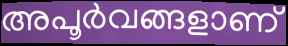
അപൂർവങ്ങളാണ്